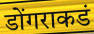
डोंगराकडं